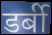
डर्बी